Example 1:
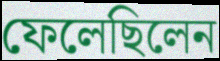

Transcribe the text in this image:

ফেলেছিলেন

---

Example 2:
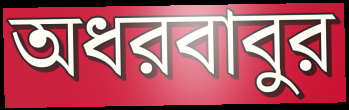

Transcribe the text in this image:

অধরবাবুর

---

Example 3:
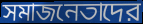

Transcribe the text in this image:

সমাজনেতাদের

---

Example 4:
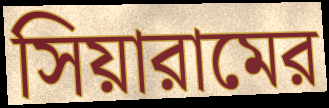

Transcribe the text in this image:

সিয়ারামের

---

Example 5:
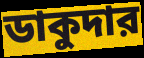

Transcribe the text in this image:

ডাকুদার